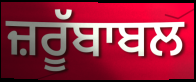
ਜ਼ਰੂੱਬਾਬਲ